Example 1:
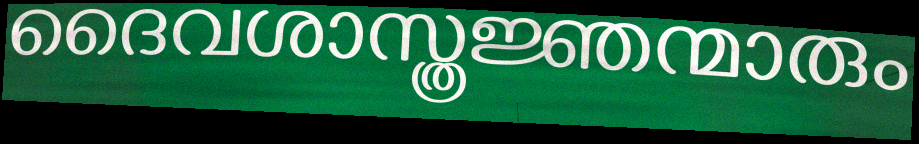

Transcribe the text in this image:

ദൈവശാസ്ത്രജ്ഞന്മാരും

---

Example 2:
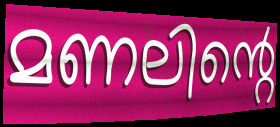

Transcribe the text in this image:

മണലിന്റെ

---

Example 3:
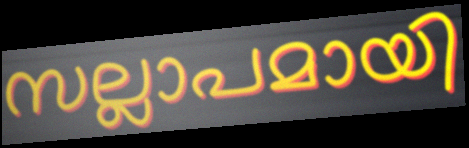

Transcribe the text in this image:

സല്ലാപമായി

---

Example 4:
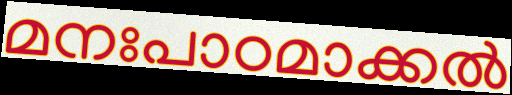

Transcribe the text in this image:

മനഃപാഠമാക്കൽ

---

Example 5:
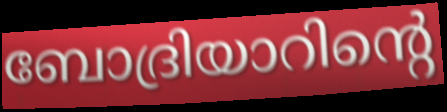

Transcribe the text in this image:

ബോദ്രിയാറിന്റെ